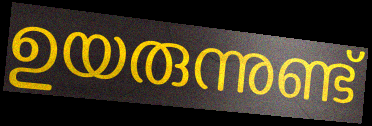
ഉയരുന്നുണ്ട്